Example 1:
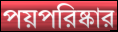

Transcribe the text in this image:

পয়পরিষ্কার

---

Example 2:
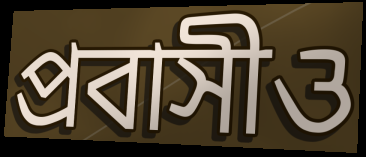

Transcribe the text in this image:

প্রবাসীও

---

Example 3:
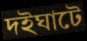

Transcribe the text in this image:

দইঘাটে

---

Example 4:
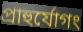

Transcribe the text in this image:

প্রাহুর্যোগং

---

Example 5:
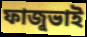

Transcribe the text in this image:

ফাজুভাই